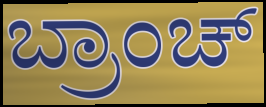
ಬ್ರಾಂಚ್